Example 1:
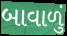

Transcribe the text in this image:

બાવાળું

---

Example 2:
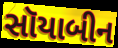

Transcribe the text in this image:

સૉયાબીન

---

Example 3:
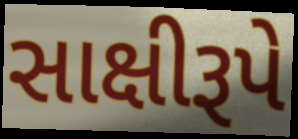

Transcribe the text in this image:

સાક્ષીરૂપે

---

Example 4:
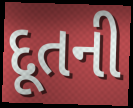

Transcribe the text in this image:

દૂતની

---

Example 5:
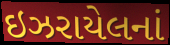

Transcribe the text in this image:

ઇઝરાયેલનાં